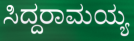
ಸಿದ್ದರಾಮಯ್ಯ